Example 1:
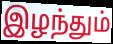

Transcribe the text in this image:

இழந்தும்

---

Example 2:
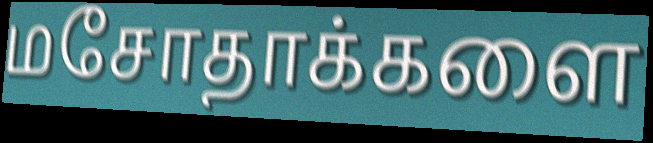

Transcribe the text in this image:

மசோதாக்களை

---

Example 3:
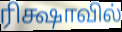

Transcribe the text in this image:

ரிக்ஷாவில்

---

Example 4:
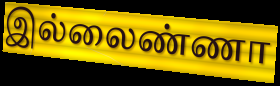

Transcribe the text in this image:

இல்லைண்ணா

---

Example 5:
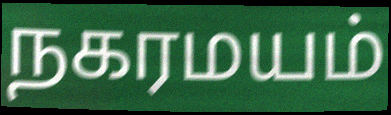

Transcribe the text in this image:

நகரமயம்